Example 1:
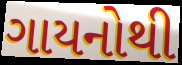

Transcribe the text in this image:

ગાયનોથી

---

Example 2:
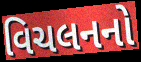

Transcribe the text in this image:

વિચલનનો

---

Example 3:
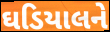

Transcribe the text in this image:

ઘડિયાલને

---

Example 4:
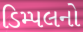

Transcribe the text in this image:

ડિમ્પલનો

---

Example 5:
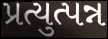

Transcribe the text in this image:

પ્રત્યુત્પન્ન